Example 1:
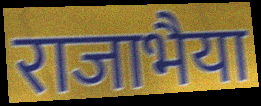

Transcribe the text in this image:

राजाभैया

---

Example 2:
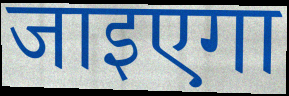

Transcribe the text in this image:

जाइएगा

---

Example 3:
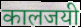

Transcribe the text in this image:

कालजयी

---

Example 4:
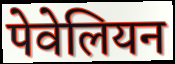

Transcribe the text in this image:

पेवेलियन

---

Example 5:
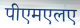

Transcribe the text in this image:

पीएमएलए